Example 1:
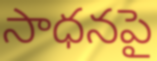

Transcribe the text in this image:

సాధనపై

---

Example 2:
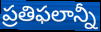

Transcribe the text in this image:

ప్రతిఫలాన్నీ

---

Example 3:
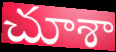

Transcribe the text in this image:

చూశా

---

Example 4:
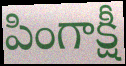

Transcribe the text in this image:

పింగాక్షీ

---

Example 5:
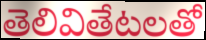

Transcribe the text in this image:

తెలివితేటలతో